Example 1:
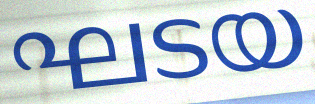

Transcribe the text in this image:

ഘടയ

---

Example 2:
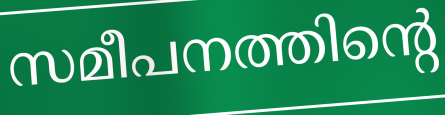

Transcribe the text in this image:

സമീപനത്തിന്റെ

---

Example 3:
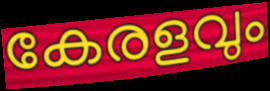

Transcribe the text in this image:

കേരളവും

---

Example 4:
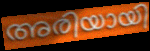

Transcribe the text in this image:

അരിയായി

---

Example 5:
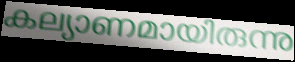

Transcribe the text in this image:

കല്യാണമായിരുന്നു